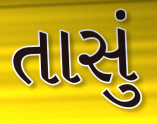
તાસું